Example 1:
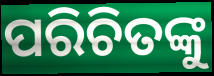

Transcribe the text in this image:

ପରିଚିତଙ୍କୁ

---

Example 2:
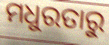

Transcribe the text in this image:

ମଧୁରତାରୁ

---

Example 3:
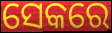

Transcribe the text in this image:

ସେକରେ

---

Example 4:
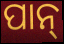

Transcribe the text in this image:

ପାନ୍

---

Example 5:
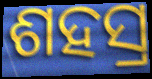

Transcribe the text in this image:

ଶହସ୍ର